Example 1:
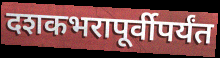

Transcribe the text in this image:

दशकभरापूर्वीपर्यंत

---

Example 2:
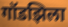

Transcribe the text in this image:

गॉडझिला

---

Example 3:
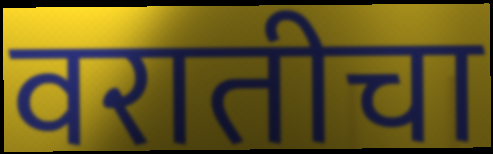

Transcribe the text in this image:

वरातीचा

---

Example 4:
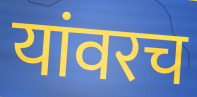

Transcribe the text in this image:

यांवरच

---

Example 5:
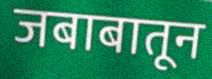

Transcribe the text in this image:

जबाबातून